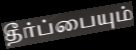
தீர்ப்பையும்